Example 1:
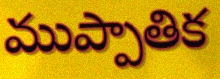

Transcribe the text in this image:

ముప్పాతిక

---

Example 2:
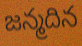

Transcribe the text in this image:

జన్మదిన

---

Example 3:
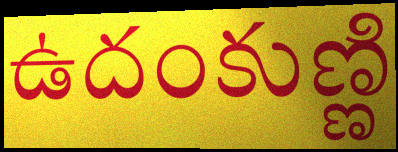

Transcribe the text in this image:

ఉదంకుణ్ణి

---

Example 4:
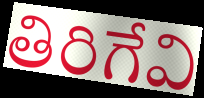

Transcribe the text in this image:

తిరిగేవి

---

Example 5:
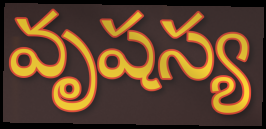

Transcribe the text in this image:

వృషస్య